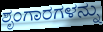
ಶೃಂಗಾರಗಳನ್ನು